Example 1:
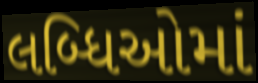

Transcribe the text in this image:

લબ્ધિઓમાં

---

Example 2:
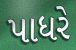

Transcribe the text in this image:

પાધરે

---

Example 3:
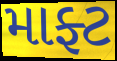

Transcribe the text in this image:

માફ્ટ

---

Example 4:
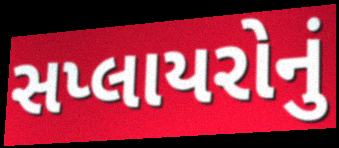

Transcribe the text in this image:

સપ્લાયરોનું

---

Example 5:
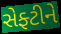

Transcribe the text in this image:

સેફ્ટીને